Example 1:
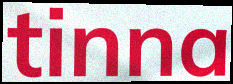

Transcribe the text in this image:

tinna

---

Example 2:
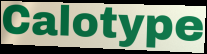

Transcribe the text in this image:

Calotype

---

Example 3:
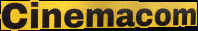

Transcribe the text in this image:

Cinemacom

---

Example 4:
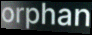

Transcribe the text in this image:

orphan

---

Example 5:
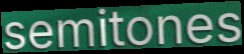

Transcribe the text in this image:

semitones